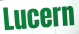
Lucern